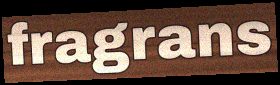
fragrans